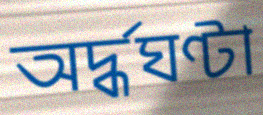
অর্দ্ধঘণ্টা